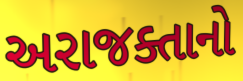
અરાજક્તાનો